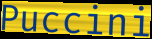
Puccini